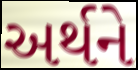
અર્થને